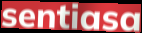
sentiasa